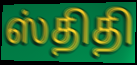
ஸ்திதி